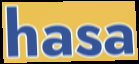
hasa